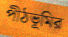
পীঠভূমির